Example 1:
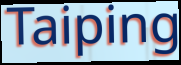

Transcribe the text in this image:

Taiping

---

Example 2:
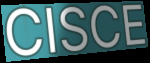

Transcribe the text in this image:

CISCE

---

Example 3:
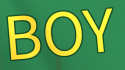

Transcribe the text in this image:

BOY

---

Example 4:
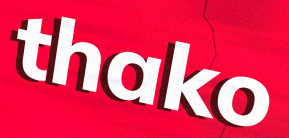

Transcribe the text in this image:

thako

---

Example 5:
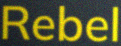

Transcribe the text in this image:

Rebel